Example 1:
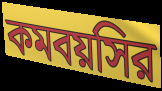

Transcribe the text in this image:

কমবয়সির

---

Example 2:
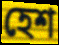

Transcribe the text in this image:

হেশ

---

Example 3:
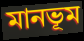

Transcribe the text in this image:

মানভূম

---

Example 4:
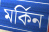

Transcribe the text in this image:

মর্কিন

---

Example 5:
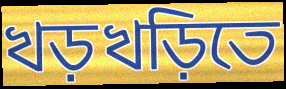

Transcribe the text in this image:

খড়খড়িতে